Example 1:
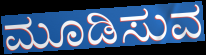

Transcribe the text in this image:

ಮೂಡಿಸುವ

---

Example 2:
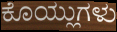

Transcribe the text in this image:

ಕೊಯ್ಲುಗಳು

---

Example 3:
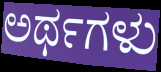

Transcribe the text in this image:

ಅರ್ಥಗಳು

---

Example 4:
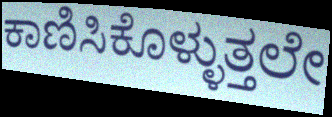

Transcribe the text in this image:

ಕಾಣಿಸಿಕೊಳ್ಳುತ್ತಲೇ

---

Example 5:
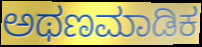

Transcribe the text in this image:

ಅಥಣಮಾಡಿಕ